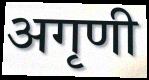
अगृणी